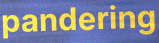
pandering